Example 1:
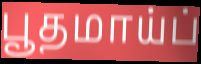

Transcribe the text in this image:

பூதமாய்ப்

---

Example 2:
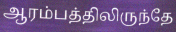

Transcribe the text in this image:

ஆரம்பத்திலிருந்தே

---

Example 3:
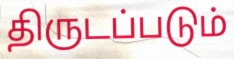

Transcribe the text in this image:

திருடப்படும்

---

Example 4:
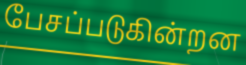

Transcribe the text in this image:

பேசப்படுகின்றன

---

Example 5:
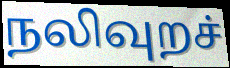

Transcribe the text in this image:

நலிவுறச்